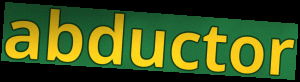
abductor